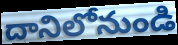
దానిలోనుండి